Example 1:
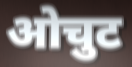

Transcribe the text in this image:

ओचुट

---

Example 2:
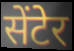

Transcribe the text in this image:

सेंटेर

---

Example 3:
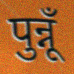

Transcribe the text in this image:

पुन्नूँ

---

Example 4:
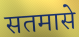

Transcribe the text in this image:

सतमासे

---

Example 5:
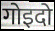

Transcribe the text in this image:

गोइदो